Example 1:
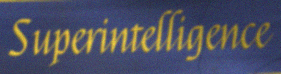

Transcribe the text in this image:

Superintelligence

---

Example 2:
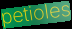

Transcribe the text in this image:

petioles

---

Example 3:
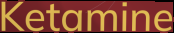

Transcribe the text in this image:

Ketamine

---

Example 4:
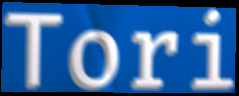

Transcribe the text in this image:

Tori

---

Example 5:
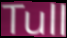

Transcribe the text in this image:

Tull